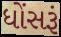
ધોંસરૂં